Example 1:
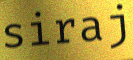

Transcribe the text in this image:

siraj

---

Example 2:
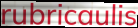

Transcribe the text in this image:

rubricaulis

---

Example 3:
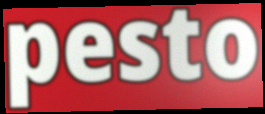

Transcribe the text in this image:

pesto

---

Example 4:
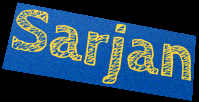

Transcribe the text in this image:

Sarjan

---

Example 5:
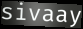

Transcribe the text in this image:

sivaay